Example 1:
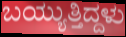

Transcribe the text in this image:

ಬಯ್ಯುತ್ತಿದ್ದಳು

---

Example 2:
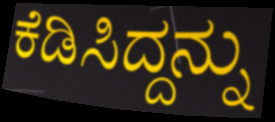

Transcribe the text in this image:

ಕೆಡಿಸಿದ್ದನ್ನು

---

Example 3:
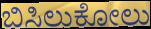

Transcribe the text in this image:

ಬಿಸಿಲುಕೋಲು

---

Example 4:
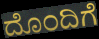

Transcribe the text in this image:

ದೊಂದಿಗೆ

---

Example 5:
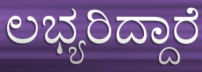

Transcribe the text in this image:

ಲಭ್ಯರಿದ್ದಾರೆ